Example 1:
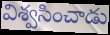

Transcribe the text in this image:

విశ్వసించాడు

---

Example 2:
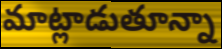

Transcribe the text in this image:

మాట్లాడుతూన్నా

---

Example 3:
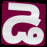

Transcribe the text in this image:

డె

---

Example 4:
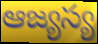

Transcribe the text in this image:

ఆజ్యస్య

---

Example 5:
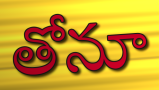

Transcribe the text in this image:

తోనూ